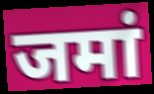
जमां